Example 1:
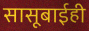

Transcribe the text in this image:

सासूबाईही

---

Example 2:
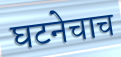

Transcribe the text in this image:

घटनेचाच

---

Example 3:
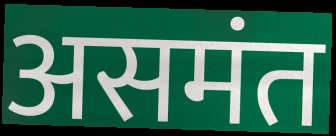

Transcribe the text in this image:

असमंत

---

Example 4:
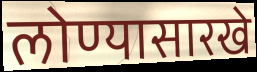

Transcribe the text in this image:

लोण्यासारखे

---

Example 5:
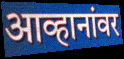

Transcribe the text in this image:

आव्हानांवर